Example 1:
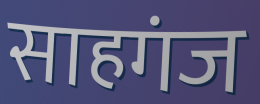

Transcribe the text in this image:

साहगंज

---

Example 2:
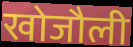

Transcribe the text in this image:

खोजौली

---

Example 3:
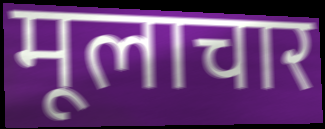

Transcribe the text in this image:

मूलाचार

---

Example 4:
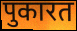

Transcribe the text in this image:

पुकारत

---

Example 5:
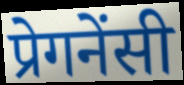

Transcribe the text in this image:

प्रेगनेंसी